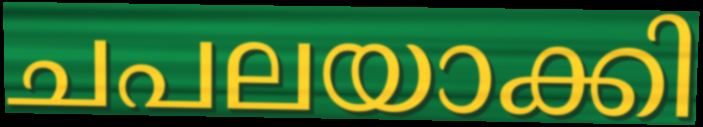
ചപലയാക്കി